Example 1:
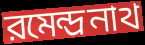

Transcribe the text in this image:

রমেন্দ্রনাথ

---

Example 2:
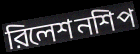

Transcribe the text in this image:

রিলেশনশিপ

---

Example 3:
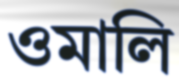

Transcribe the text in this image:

ওমালি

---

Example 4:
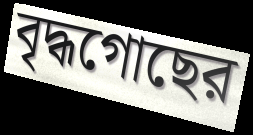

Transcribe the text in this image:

বৃদ্ধগোছের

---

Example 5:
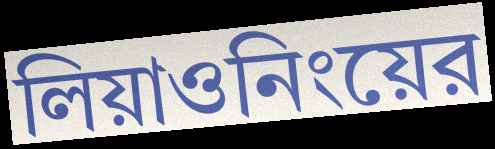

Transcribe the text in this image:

লিয়াওনিংয়ের